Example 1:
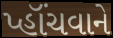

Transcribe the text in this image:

પ્હૉંચવાને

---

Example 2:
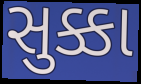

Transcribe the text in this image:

સુક્કા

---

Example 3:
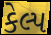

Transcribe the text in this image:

કેલ્પ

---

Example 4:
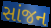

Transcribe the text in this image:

સાંજન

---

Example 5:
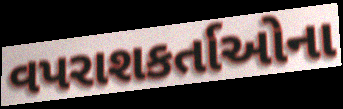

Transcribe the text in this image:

વપરાશકર્તાઓના